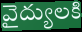
వైద్యులకి